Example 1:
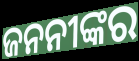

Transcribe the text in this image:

ଜନନୀଙ୍କର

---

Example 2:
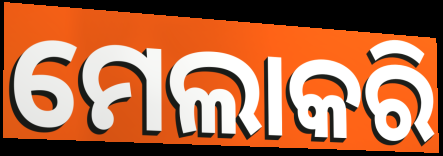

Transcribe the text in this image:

ମେଲାକରି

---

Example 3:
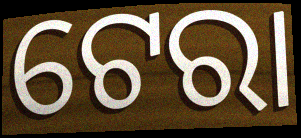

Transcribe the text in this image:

ଟେରା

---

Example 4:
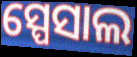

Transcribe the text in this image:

ସ୍ପେସାଲ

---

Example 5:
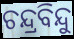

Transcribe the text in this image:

ଚନ୍ଦ୍ରବିନ୍ଦୁ